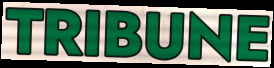
TRIBUNE